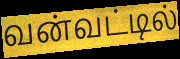
வன்வட்டில்